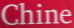
Chine